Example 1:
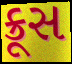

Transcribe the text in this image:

ક્રૂસ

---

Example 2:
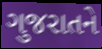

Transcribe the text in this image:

ગુજરાતને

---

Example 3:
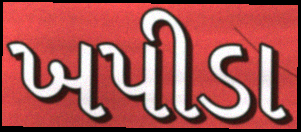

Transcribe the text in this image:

ખપીડા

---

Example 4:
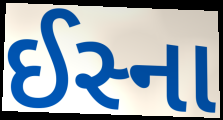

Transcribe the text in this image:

ઈસ્ના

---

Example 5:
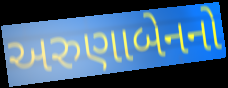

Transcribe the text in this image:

અરુણાબેનનો